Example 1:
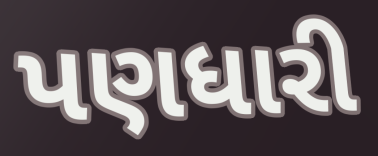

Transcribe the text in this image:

પણધારી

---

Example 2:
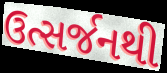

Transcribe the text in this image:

ઉત્સર્જનથી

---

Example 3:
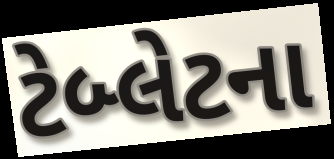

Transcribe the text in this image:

ટેબ્લેટના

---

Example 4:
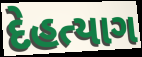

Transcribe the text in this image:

દેહત્યાગ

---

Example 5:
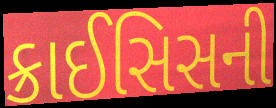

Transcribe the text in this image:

ક્રાઈસિસની